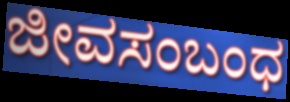
ಜೀವಸಂಬಂಧ